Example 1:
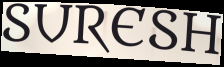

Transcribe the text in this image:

SURESH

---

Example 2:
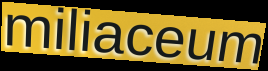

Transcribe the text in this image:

miliaceum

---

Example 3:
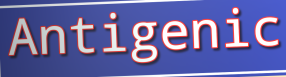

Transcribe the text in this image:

Antigenic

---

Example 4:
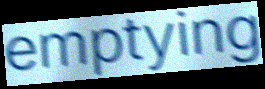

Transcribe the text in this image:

emptying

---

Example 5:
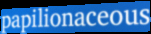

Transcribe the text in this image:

papilionaceous